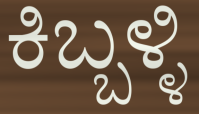
ಕಿಬ್ಬಳ್ಳಿ